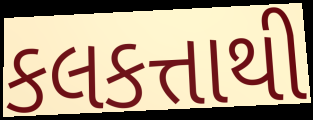
કલકત્તાથી